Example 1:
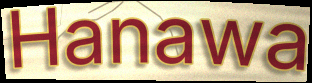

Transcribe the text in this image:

Hanawa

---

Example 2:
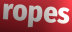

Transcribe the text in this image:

ropes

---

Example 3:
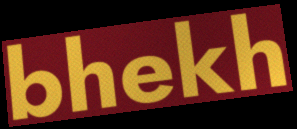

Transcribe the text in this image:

bhekh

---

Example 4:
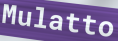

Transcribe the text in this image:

Mulatto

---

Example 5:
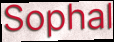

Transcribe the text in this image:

Sophal